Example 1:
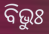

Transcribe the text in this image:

ବିଭୁଃ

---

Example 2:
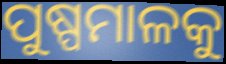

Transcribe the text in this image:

ପୁଷ୍ପମାଳକୁ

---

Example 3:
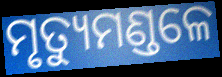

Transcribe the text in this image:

ମୃତ୍ୟୁମଣ୍ଡଳେ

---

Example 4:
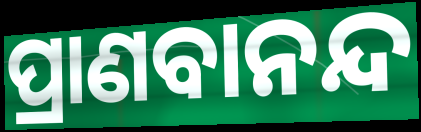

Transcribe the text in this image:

ପ୍ରାଣବାନନ୍ଦ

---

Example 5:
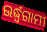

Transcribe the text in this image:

ଊର୍ଦ୍ଧ୍ଵଗାମୀ